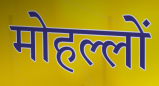
मोहल्लों